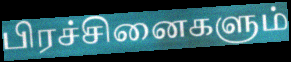
பிரச்சினைகளும்